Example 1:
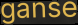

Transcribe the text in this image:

ganse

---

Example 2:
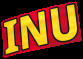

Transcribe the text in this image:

INU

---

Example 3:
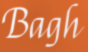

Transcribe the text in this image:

Bagh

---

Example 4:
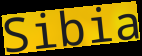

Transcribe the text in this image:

Sibia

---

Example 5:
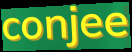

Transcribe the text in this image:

conjee